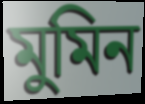
মুমিন